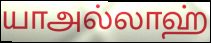
யாஅல்லாஹ்